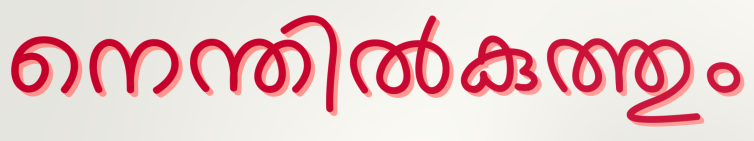
നെന്തിൽകുത്തും